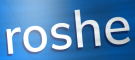
roshe